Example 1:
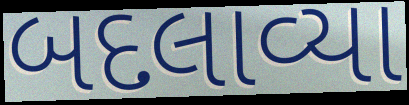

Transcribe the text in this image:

બદલાવ્યા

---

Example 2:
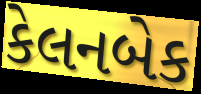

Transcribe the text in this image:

કેલનબેક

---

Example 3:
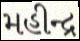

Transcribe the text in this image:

મહીન્દ્ર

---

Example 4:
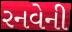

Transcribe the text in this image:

રનવેની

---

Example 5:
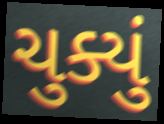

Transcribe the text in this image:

ચુક્યું